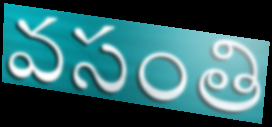
వసంతి